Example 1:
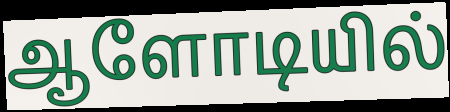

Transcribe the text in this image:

ஆளோடியில்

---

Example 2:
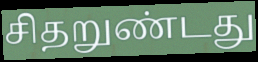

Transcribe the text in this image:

சிதறுண்டது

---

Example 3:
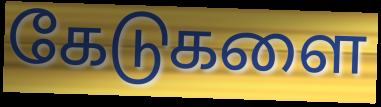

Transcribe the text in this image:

கேடுகளை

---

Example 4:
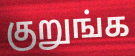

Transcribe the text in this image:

குறுங்க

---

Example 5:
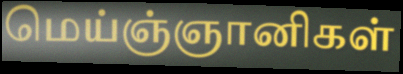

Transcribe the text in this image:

மெய்ஞ்ஞானிகள்